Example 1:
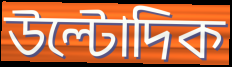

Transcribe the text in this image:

উল্টোদিক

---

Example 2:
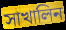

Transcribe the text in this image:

সাখালিন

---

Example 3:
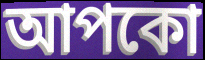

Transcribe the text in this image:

আপকো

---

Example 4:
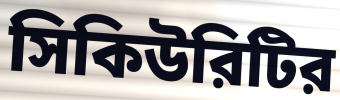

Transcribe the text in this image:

সিকিউরিটির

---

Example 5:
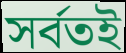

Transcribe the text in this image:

সর্বতই